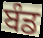
ਬੰਡ